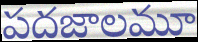
పదజాలమూ